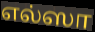
எல்ஸா